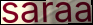
saraa